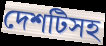
দেশটিসহ